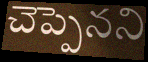
చెప్పెనని